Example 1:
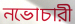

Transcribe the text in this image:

নভোচারী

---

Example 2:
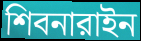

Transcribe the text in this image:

শিবনারাইন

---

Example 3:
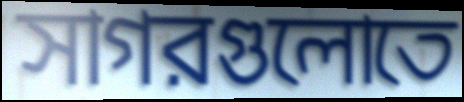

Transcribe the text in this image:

সাগরগুলোতে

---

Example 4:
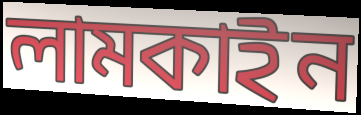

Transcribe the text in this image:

লামকাইন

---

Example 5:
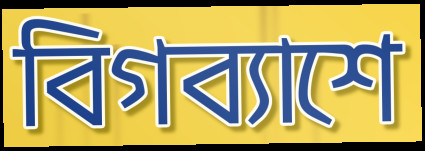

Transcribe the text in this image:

বিগব্যাশে